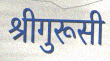
श्रीगुरूसी